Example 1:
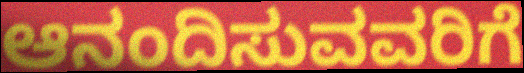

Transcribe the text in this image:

ಆನಂದಿಸುವವರಿಗೆ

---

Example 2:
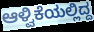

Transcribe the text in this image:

ಆಳ್ವಿಕೆಯಲ್ಲಿದ್ದ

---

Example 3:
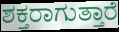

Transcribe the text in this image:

ಶಕ್ತರಾಗುತ್ತಾರೆ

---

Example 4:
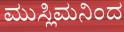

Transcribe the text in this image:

ಮುಸ್ಲಿಮನಿಂದ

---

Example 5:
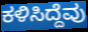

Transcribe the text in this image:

ಕಳಿಸಿದ್ದೆವು